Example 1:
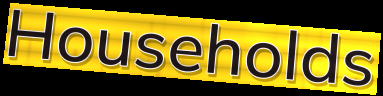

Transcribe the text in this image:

Households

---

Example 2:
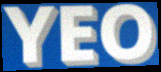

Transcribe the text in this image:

YEO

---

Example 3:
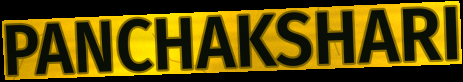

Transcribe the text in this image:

PANCHAKSHARI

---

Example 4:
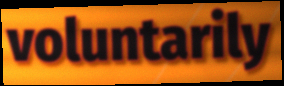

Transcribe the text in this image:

voluntarily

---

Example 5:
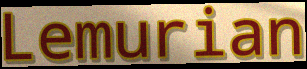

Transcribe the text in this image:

Lemurian